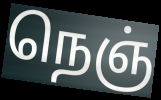
நெஞ்